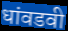
धांवडवी